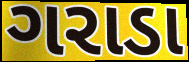
ગરાડા